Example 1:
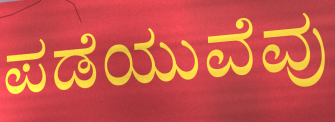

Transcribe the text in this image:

ಪಡೆಯುವೆವು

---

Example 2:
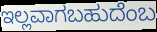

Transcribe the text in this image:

ಇಲ್ಲವಾಗಬಹುದೆಂಬ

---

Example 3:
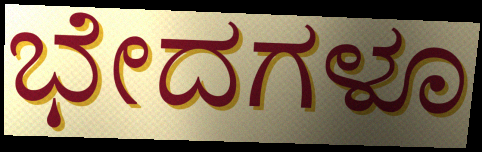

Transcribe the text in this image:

ಭೇದಗಳೂ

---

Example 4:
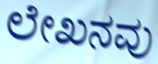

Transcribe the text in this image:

ಲೇಖನವು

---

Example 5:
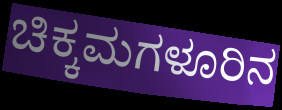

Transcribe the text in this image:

ಚಿಕ್ಕಮಗಳೂರಿನ